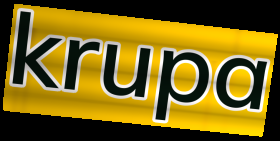
krupa